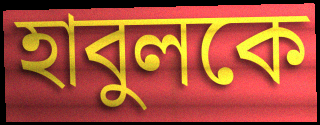
হাবুলকে